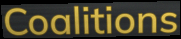
Coalitions